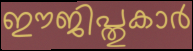
ഈജിപ്തുകാർ